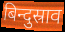
बिन्दुस्राव